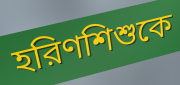
হরিণশিশুকে